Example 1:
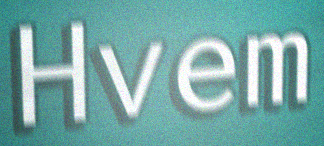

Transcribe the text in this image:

Hvem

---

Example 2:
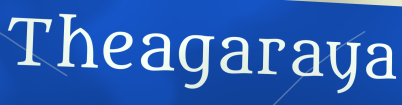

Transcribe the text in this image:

Theagaraya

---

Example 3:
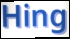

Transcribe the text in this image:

Hing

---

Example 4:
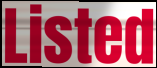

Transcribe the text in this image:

Listed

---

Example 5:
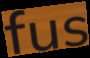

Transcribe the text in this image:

fus